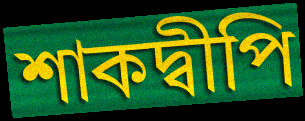
শাকদ্বীপি